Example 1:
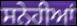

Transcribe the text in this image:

ਸਨੇਹੀਆਂ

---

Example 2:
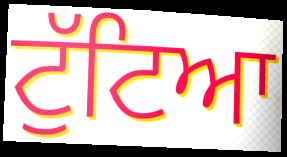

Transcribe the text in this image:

ਟੁੱਟਿਆ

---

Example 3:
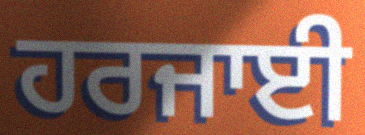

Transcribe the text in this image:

ਹਰਜਾਈ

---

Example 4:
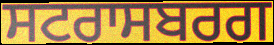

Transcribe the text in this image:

ਸਟਰਾਸਬਰਗ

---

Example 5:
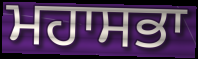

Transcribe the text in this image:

ਮਹਾਸਭਾ